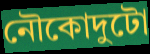
নৌকোদুটো